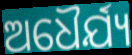
ଅଧୈର୍ଯ୍ୟ